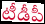
టీడీపీ